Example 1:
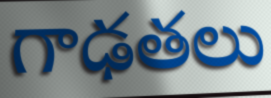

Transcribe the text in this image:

గాఢతలు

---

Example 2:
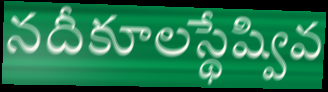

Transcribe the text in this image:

నదీకూలస్థేష్వివ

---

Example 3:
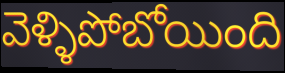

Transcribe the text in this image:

వెళ్ళిపోబోయింది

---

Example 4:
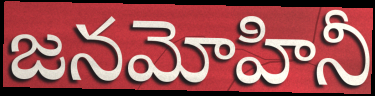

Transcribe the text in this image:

జనమోహినీ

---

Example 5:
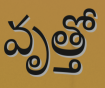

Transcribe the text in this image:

వృత్తో